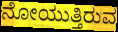
ನೋಯುತ್ತಿರುವ